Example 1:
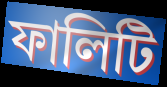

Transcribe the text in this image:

ফালিটি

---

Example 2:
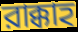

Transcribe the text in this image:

রাক্কাহ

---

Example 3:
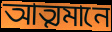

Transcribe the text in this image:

আত্মমানে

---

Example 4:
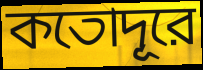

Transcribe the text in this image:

কতোদূরে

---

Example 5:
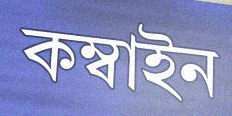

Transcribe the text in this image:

কম্বাইন